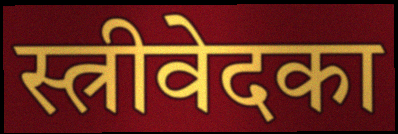
स्त्रीवेदका